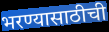
भरण्यासाठीची